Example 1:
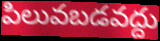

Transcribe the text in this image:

పిలువబడవద్దు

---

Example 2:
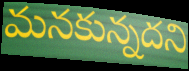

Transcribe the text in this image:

మనకున్నదని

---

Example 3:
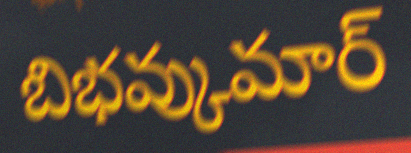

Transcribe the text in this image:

బిభవ్కుమార్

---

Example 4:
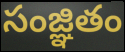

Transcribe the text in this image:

సంజ్ఞితం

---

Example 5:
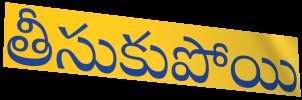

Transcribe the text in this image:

తీసుకుపోయి